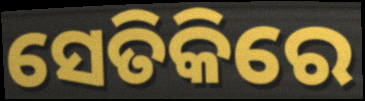
ସେତିକିରେ